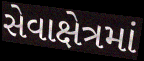
સેવાક્ષેત્રમાં